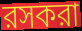
রসকরা